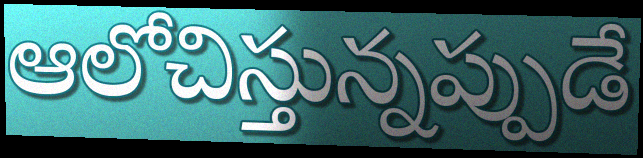
ఆలోచిస్తున్నప్పుడే